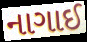
નાગાઈ